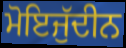
ਮੋਇਜੁੱਦੀਨ